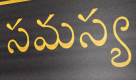
సమస్య